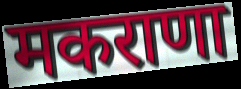
मकराणा